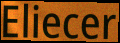
Eliecer